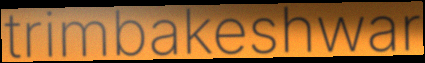
trimbakeshwar